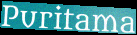
Puritama